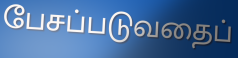
பேசப்படுவதைப்